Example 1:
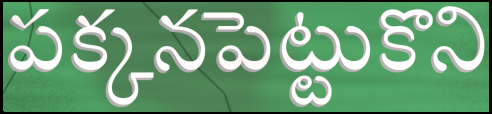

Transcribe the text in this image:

పక్కనపెట్టుకొని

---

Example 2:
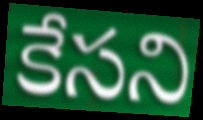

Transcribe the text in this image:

కేసని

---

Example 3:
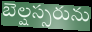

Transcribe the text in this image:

బెల్షస్సరును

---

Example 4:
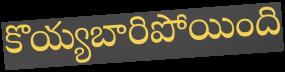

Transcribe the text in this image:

కొయ్యబారిపోయింది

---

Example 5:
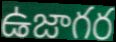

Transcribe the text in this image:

ఉజాగర